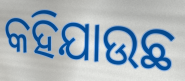
କହିଯାଉଛ